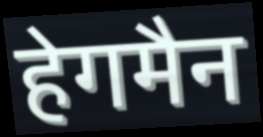
हेगमैन